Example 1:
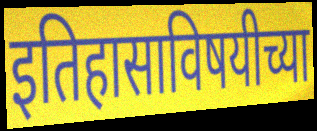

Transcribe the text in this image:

इतिहासाविषयीच्या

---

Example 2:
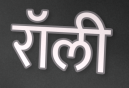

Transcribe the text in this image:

रॉली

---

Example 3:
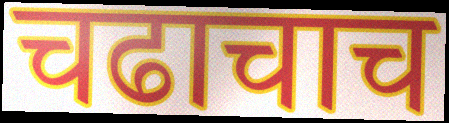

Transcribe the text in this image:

चढाचाच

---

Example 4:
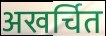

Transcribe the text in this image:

अखर्चित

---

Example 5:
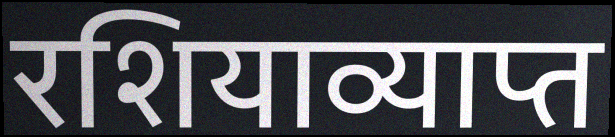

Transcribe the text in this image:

रशियाव्याप्त